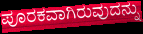
ಪೂರಕವಾಗಿರುವುದನ್ನು